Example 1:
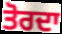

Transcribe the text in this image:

ਤੋਰਦਾ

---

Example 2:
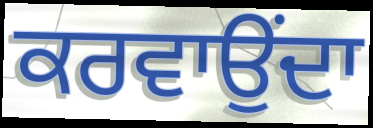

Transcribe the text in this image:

ਕਰਵਾਉਂਦਾ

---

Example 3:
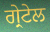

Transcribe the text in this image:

ਗ੍ਰੇਟੇਲ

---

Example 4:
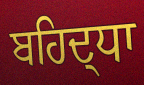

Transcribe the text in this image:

ਬਹਿਦ੍ਧਾ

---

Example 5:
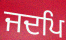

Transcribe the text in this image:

ਜਦਪਿ